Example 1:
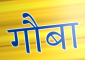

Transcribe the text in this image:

गौबा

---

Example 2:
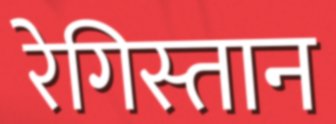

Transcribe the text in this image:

रेगिस्‍तान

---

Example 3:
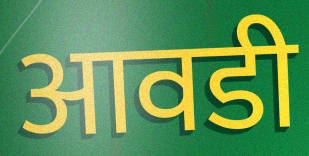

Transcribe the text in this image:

आवडी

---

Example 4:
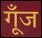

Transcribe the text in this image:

गूँज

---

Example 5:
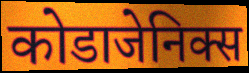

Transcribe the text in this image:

कोडाजेनिक्स